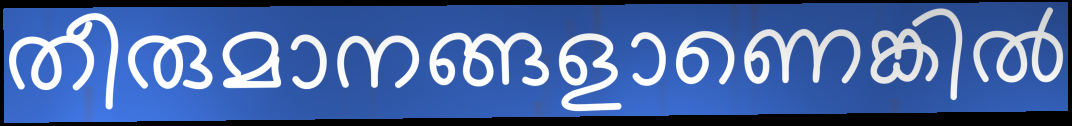
തീരുമാനങ്ങളാണെങ്കിൽ